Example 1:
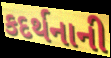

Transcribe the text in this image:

કદર્થનાની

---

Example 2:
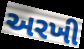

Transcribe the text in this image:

અરખી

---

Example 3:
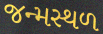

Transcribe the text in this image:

જન્મસ્થળ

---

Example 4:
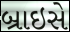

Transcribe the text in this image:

બ્રાઇસે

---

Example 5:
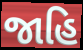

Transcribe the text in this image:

જાહિ